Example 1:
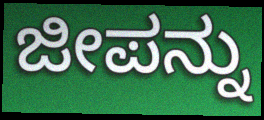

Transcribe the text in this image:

ಜೀಪನ್ನು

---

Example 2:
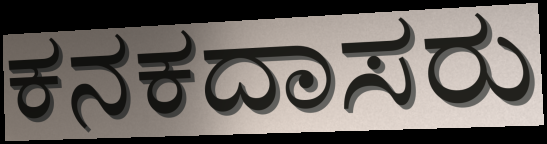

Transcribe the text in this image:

ಕನಕದಾಸರು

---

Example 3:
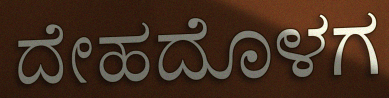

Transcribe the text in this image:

ದೇಹದೊಳಗ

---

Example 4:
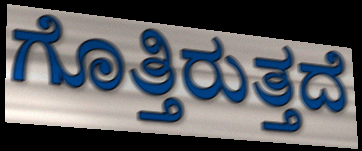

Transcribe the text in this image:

ಗೊತ್ತಿರುತ್ತದೆ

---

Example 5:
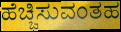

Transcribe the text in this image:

ಹೆಚ್ಚಿಸುವಂತಹ